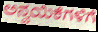
ಅನ್ವಯಿಕೆಗಳಿಗೆ